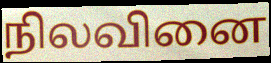
நிலவினை